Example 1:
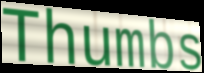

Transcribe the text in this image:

Thumbs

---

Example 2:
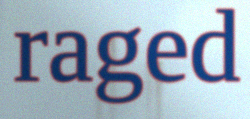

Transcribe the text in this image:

raged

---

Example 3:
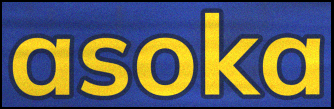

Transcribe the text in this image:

asoka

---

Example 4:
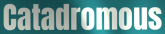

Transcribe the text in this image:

Catadromous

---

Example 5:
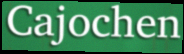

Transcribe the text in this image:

Cajochen